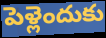
పెళ్లెందుకు